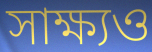
সাক্ষ্যও